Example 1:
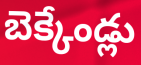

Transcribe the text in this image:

బెక్కేండ్లు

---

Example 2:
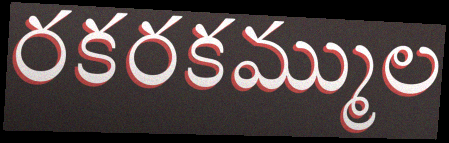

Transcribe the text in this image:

రకరకమ్ముల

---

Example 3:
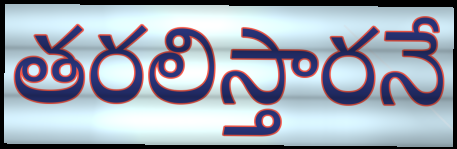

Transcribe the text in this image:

తరలిస్తారనే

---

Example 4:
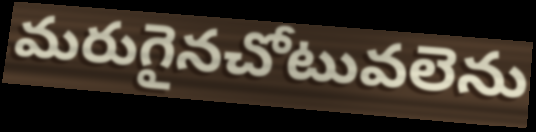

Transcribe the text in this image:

మరుగైనచోటువలెను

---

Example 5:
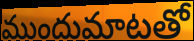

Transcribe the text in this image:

ముందుమాటతో